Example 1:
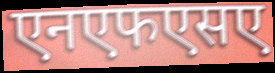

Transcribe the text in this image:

एनएफएसए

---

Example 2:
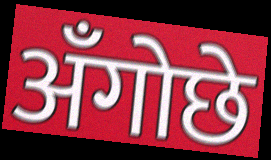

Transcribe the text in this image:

अँगोछे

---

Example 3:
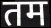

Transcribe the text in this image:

तम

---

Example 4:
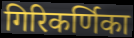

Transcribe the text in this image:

गिरिकर्णिका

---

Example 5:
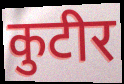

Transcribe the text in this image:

कुटीर